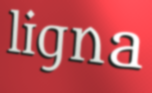
ligna